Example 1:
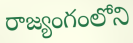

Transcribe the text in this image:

రాజ్యంగంలోని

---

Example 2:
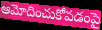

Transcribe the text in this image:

ఆమోదించుకోవడంపై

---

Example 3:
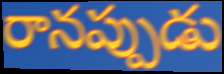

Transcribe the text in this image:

రానప్పుడు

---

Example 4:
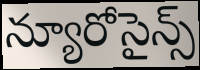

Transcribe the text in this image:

న్యూరోసైన్స్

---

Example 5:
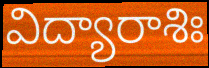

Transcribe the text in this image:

విద్యారాశిః